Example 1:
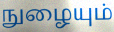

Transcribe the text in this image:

நுழையும்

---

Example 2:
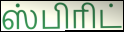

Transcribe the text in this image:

ஸ்பிரிட்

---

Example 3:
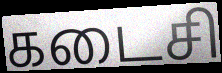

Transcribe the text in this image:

கடைசி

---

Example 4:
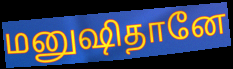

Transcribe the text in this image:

மனுஷிதானே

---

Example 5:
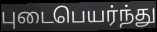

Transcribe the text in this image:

புடைபெயர்ந்து